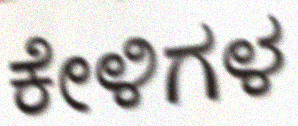
ಕೇಳಿಗಳ